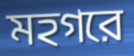
মহগরে